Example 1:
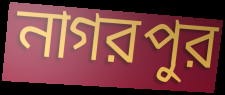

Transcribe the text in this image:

নাগরপুর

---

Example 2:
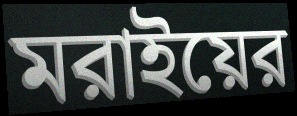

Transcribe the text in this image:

মরাইয়ের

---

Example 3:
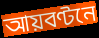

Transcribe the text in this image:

আয়বণ্টনে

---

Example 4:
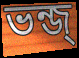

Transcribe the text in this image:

ভন্জ্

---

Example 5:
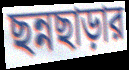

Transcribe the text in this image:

ছন্নছাড়ার